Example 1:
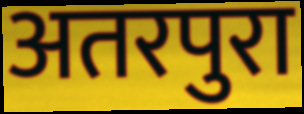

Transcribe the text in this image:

अतरपुरा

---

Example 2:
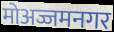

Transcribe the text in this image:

मोअज्जमनगर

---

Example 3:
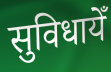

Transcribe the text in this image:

सुविधायेँ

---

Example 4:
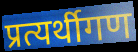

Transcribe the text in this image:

प्रत्यर्थीगण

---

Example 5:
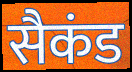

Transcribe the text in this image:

सैकंड